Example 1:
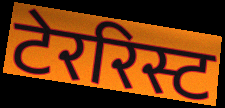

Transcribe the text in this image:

टेररिस्ट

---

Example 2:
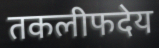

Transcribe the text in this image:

तकलीफदेय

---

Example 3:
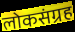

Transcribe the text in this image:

लोकसंग्रह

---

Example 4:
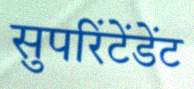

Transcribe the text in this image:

सुपरिंटेंडेंट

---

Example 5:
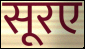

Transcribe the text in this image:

सूरए